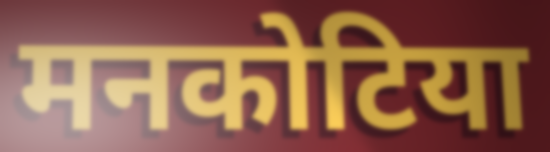
मनकोटिया